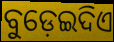
ବୁଡ଼େଇଦିଏ